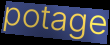
potage